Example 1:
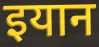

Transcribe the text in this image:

इयान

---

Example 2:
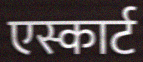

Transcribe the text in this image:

एस्कार्ट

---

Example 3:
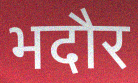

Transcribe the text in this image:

भदौर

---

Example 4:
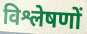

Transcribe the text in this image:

विश्लेषणों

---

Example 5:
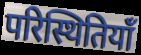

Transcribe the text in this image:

परिस्थितियाँ